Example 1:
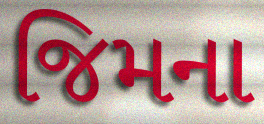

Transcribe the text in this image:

જિમના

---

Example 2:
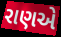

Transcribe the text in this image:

રાણએ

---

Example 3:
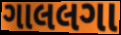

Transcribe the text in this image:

ગાલલગા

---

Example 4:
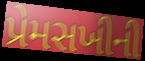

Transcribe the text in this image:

પ્રેમસખીની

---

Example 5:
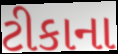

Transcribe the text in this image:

ટીકાના